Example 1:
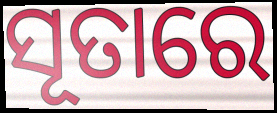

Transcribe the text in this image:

ସୂତାରେ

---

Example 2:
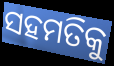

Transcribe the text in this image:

ସହମତିକୁ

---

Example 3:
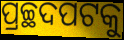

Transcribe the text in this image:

ପ୍ରଚ୍ଛଦପଟକୁ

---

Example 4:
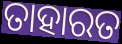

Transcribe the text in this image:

ତାହାରତ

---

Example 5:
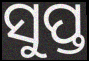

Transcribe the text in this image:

ସୁପ୍ତ